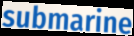
submarine